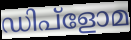
ഡിപ്ളോമ